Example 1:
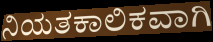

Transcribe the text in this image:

ನಿಯತಕಾಲಿಕವಾಗಿ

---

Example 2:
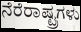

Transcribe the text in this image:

ನೆರೆರಾಷ್ಟ್ರಗಳು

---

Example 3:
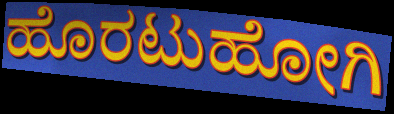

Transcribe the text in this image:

ಹೊರಟುಹೋಗಿ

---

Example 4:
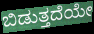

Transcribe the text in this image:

ಬಿಡುತ್ತದೆಯೇ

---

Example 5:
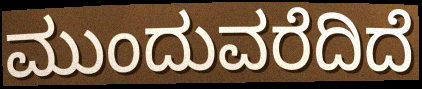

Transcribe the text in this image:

ಮುಂದುವರೆದಿದೆ